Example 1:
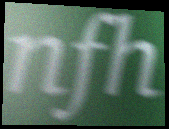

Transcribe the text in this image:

nfh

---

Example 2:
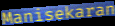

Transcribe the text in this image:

Manisekaran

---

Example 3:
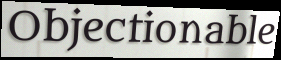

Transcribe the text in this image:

Objectionable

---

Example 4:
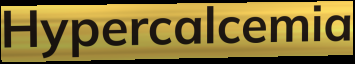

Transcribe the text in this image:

Hypercalcemia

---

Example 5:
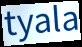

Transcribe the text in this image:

tyala